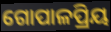
ଗୋପାଳପ୍ରିୟ